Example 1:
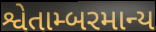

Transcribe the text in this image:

શ્વેતામ્બરમાન્ય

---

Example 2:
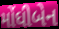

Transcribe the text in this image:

મોંઘીબેન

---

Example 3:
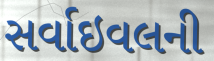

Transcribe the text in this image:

સર્વાઇવલની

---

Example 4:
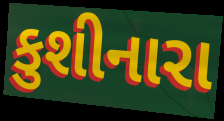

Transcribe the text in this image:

કુશીનારા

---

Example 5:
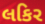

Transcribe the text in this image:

લકિર